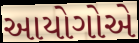
આયોગોએ